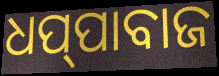
ଧପ୍‌ପାବାଜ